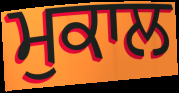
ਮੁਕਾਲ